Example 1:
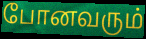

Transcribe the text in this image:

போனவரும்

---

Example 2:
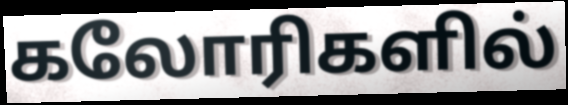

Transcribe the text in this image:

கலோரிகளில்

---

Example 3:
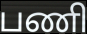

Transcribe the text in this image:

பணி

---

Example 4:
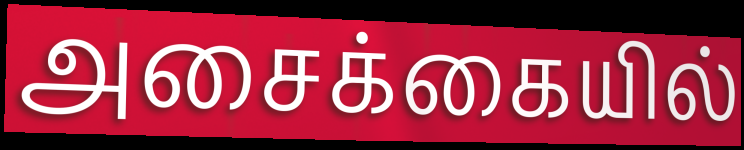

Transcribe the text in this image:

அசைக்கையில்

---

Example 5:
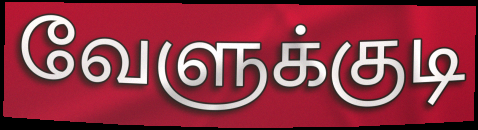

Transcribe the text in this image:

வேளுக்குடி